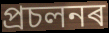
প্ৰচলনৰ